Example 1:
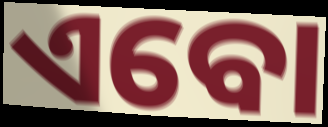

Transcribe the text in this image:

ଏବୋ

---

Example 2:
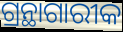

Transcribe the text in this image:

ଗ୍ରନ୍ଥାଗାରୀକ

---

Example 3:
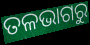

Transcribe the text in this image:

ତଳଭାଗରୁ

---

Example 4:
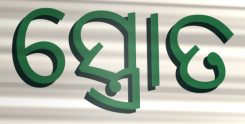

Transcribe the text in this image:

ସ୍ତ୍ରୋତ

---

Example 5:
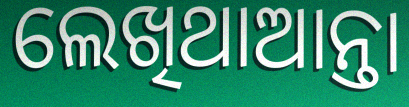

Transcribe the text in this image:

ଲେଖିଥାଆନ୍ତା